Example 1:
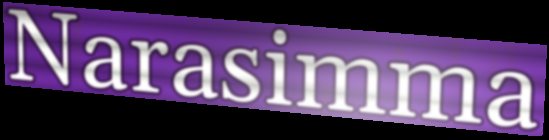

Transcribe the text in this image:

Narasimma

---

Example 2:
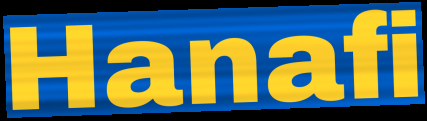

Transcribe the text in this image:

Hanafi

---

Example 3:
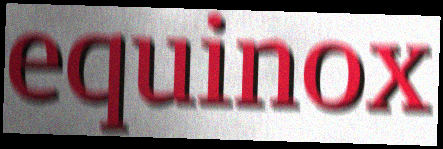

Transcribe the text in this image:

equinox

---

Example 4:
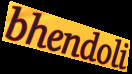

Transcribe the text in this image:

bhendoli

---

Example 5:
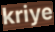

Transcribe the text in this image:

kriye